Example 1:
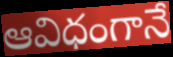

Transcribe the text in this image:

ఆవిధంగానే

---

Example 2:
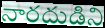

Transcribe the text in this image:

నారదుడిని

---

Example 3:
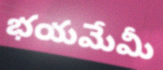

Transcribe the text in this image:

భయమేమీ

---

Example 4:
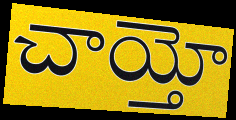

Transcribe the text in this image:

చాయ్తో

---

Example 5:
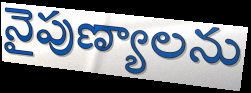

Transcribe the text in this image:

నైపుణ్యాలను